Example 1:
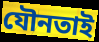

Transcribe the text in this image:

যৌনতাই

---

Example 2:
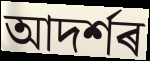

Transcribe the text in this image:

আদৰ্শৰ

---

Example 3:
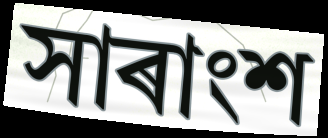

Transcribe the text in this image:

সাৰাংশ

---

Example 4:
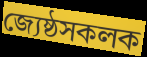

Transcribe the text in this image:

জ্যেষ্ঠসকলক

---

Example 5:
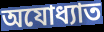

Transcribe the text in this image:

অযোধ্যাত